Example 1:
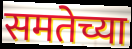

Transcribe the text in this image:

समतेच्या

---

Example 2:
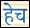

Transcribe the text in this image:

हेच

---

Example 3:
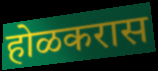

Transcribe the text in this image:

होळकरास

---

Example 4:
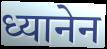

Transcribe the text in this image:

ध्यानेन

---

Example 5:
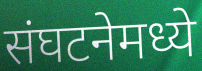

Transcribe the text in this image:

संघटनेमध्ये